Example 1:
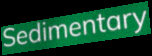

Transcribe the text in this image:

Sedimentary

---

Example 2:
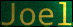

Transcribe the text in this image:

Joel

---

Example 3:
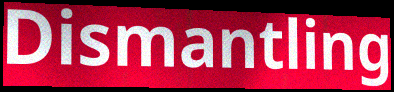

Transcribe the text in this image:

Dismantling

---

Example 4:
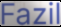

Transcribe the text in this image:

Fazil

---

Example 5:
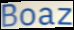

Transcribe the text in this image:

Boaz